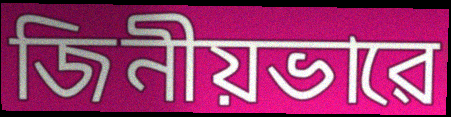
জিনীয়ভাৱে